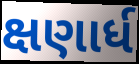
ક્ષણાર્ધ